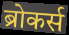
ब्रोकर्स